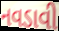
નવડાવી